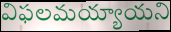
విఫలమయ్యాయని